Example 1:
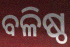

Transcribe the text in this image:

ବଳିଷ୍ଠ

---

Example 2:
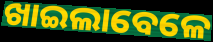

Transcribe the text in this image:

ଖାଇଲାବେଳେ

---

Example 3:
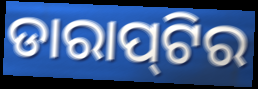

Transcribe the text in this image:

ଡାରାପ୍‌ଟିର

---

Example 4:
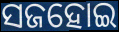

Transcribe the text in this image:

ସଜହୋଇ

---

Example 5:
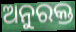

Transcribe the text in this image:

ଅନୁରକ୍ତ